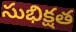
సుభిక్షత